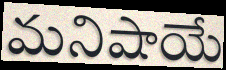
మనిషాయే